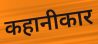
कहानीकार